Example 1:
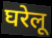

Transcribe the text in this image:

घरेलू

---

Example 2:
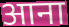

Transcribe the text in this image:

आना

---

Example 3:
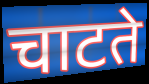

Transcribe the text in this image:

चाटते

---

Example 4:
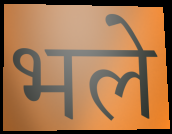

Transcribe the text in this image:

भले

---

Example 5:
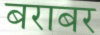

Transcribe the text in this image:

बराबर